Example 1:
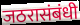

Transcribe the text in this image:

जठरासंबंधी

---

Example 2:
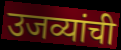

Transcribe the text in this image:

उजव्यांची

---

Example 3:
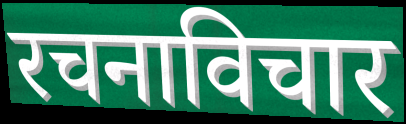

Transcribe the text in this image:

रचनाविचार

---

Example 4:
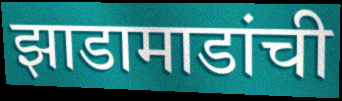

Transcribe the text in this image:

झाडामाडांची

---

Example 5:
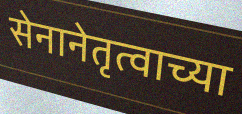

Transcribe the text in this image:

सेनानेतृत्वाच्या